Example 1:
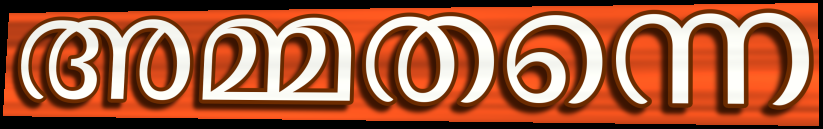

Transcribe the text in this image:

അമ്മതന്നെ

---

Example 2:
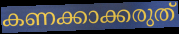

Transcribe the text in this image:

കണക്കാക്കരുത്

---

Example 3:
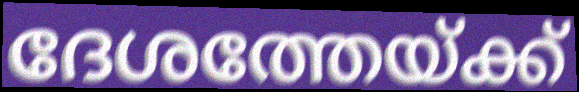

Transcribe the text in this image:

ദേശത്തേയ്ക്ക്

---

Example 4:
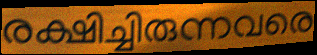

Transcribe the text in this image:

രക്ഷിച്ചിരുന്നവരെ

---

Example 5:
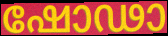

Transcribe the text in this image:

ഷോഢാ